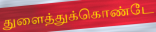
துளைத்துக்கொண்டே